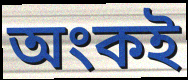
অংকই